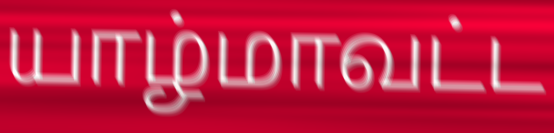
யாழ்மாவட்ட